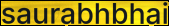
saurabhbhai